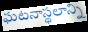
ఘటనాస్థలాన్ని